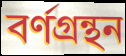
বর্ণগ্রন্থন